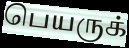
பெயருக்